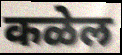
कळेल